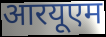
आरयूएम